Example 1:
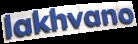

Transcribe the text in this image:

lakhvano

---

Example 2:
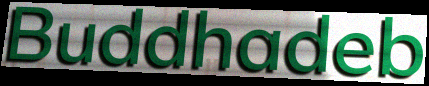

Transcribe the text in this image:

Buddhadeb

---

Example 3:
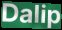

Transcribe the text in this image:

Dalip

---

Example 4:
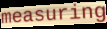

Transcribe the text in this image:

measuring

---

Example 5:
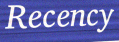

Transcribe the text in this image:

Recency